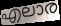
എലാര